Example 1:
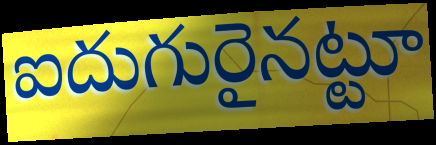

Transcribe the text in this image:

ఐదుగురైనట్టూ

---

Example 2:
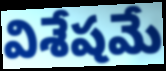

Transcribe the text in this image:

విశేషమే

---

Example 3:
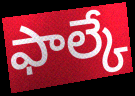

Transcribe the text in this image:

ఫాల్కే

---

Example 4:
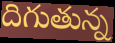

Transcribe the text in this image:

దిగుతున్న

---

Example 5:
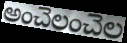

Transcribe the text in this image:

అంచెలంచెల